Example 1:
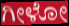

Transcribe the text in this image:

ಗೀಳೋ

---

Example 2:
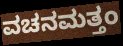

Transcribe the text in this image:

ವಚನಮತ್ತಂ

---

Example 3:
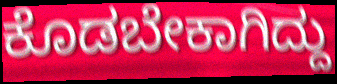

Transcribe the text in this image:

ಕೊಡಬೇಕಾಗಿದ್ದು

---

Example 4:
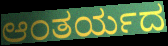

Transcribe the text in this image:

ಆಂತರ್ಯದ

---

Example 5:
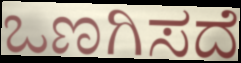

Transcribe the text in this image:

ಒಣಗಿಸದೆ